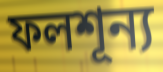
ফলশূন্য